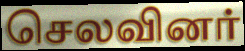
செலவினர்